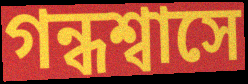
গন্ধশ্বাসে